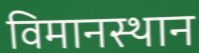
विमानस्थान